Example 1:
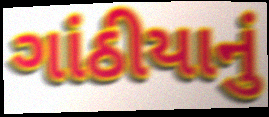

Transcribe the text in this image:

ગાંઠીયાનું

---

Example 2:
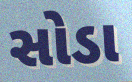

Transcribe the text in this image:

સોડા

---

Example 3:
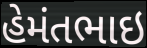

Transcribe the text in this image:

હેમંતભાઇ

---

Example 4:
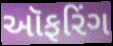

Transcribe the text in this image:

ઑફરિંગ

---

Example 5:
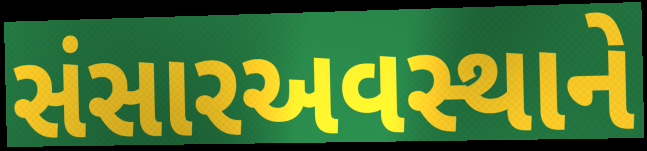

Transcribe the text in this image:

સંસારઅવસ્થાને